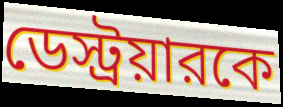
ডেস্ট্রয়ারকে